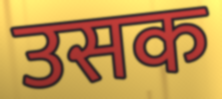
उसक